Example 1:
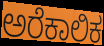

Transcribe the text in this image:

ಅರೆಕಾಲಿಕ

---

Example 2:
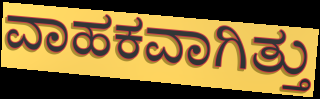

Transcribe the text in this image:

ವಾಹಕವಾಗಿತ್ತು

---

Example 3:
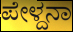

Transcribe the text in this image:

ಪೇಳ್ದನಾ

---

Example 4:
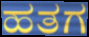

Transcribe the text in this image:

ಹತಗ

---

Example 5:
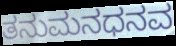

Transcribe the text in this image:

ತನುಮನಧನವ